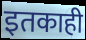
इतकाही